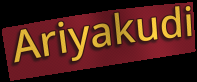
Ariyakudi